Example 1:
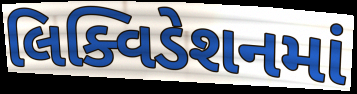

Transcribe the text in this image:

લિક્વિડેશનમાં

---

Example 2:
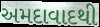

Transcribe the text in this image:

અમદાવાદથી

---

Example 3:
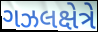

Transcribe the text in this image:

ગઝલક્ષેત્રે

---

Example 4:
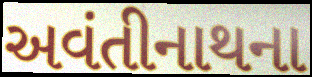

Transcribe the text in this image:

અવંતીનાથના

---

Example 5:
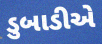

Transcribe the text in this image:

ડુબાડીએ